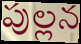
పుల్లన